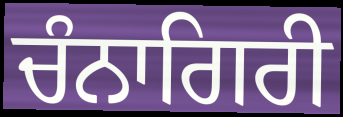
ਚੰਨਾਗਿਰੀ